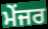
ਮੇਂਜਰ